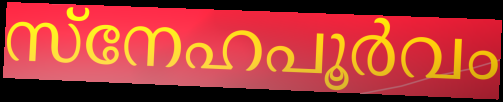
സ്നേഹപൂർവം